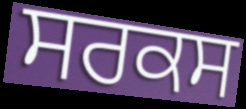
ਸਰਕਸ